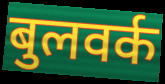
बुलवर्क